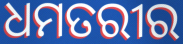
ଧମତରୀର